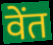
वेंत